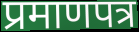
प्रमाणपत्र